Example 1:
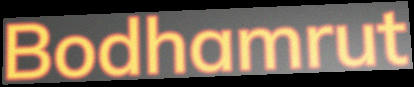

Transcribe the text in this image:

Bodhamrut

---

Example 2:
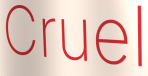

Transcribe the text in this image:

Cruel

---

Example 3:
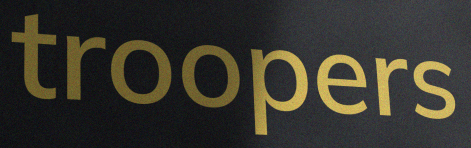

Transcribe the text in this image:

troopers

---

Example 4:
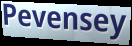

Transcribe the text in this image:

Pevensey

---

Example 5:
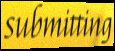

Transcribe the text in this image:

submitting